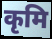
कृमि